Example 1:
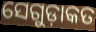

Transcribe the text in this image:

ସେଗୁଡ଼ାକତ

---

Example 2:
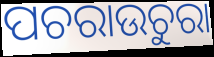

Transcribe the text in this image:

ପଚରାଉଚୁରା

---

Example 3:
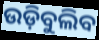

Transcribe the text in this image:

ଉଡ଼ିବୁଲିବ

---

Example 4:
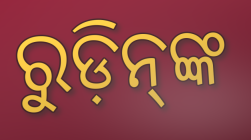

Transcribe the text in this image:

ରୁଡ଼ିନ୍‌ଙ୍କ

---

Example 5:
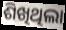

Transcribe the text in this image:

ଶିଖିଥିଲା